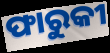
ଫାରୁକୀ